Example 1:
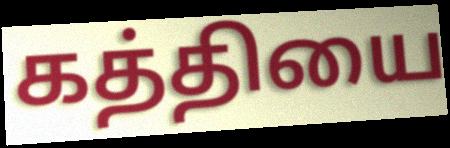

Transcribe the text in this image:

கத்தியை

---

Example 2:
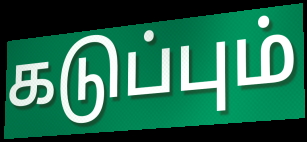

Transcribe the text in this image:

கடுப்பும்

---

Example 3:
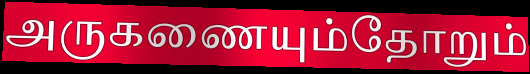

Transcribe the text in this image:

அருகணையும்தோறும்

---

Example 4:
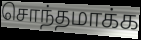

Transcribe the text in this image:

சொந்தமாக்க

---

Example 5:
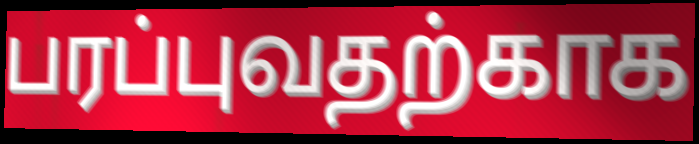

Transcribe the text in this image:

பரப்புவதற்காக